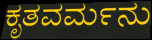
ಕೃತವರ್ಮನು